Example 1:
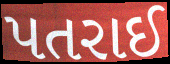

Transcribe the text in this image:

પતરાઈ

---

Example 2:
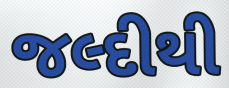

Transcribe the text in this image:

જલ્દીથી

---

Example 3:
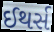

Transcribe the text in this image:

ઈથર્સ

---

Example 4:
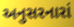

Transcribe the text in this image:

અનુસરનારાં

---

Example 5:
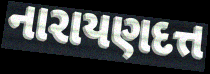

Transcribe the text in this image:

નારાયણદત્ત